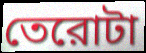
তেরোটা